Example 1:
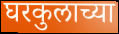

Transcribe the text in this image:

घरकुलाच्या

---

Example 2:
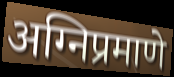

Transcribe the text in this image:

अग्निप्रमाणे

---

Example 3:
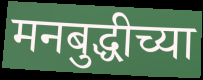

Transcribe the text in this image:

मनबुद्धीच्या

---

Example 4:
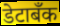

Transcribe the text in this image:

डेटाबँक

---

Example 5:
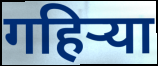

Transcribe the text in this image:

गहिऱ्या